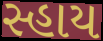
સ્હાય